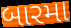
બારમા